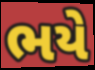
ભયે